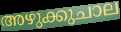
അഴുക്കുചാല